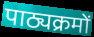
पाठ्यक्रमों